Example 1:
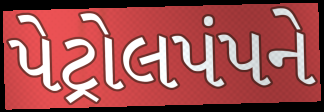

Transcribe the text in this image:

પેટ્રોલપંપને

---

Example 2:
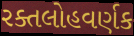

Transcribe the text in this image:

રક્તલોહવર્ણક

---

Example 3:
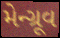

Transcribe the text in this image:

મેન્ગ્રૂવ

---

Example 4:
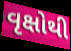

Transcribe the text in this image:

વૃક્ષોથી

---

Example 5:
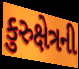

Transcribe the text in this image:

કુરુક્ષેત્રની